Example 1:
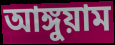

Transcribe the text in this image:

আঙ্গুয়াম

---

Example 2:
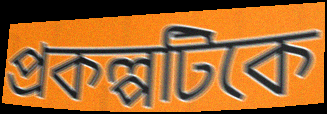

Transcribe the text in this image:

প্রকল্পটিকে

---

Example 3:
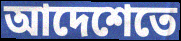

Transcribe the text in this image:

আদেশেতে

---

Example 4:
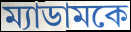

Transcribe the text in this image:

ম্যাডামকে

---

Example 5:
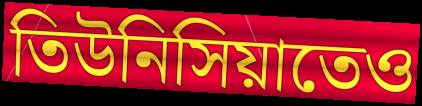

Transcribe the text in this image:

তিউনিসিয়াতেও